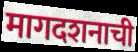
मागदशनाची